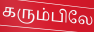
கரும்பிலே